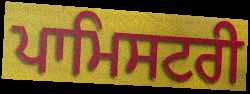
ਪਾਮਿਸਟਰੀ